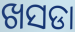
ଖସଡା